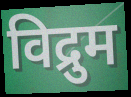
विद्रुम